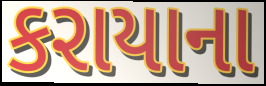
કરાયાના